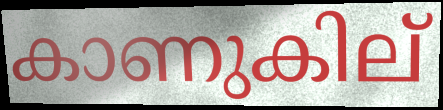
കാണുകില്